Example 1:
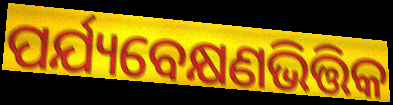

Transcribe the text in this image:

ପର୍ଯ୍ୟବେକ୍ଷଣଭିତ୍ତିକ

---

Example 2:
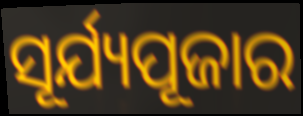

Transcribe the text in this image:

ସୂର୍ଯ୍ୟପୂଜାର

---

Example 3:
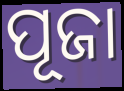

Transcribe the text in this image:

ପୂଜା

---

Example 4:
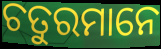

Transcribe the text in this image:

ଚତୁରମାନେ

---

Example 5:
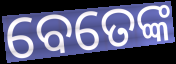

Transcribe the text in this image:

ବେତେଙ୍କ